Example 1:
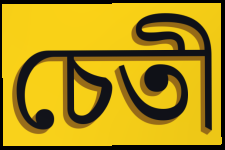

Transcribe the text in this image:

চেতী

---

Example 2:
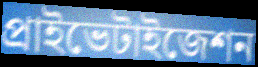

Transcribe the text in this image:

প্রাইভেটাইজেশন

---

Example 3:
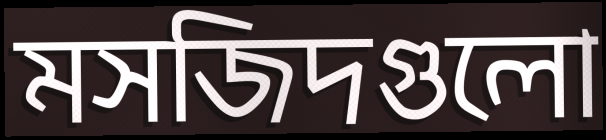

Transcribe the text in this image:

মসজিদগুলো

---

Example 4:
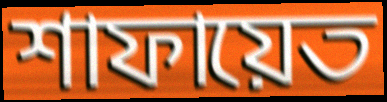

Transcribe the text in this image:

শাফায়েত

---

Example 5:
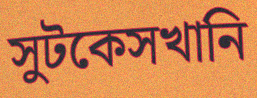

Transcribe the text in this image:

সুটকেসখানি